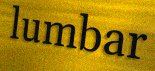
lumbar